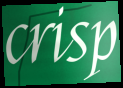
crisp